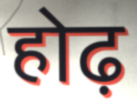
होढ़